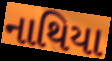
નાથિયા